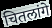
चितलांगे